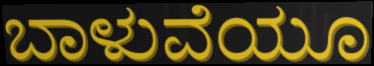
ಬಾಳುವೆಯೂ